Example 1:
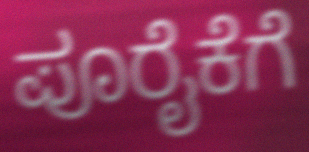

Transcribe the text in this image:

ಪೂರೈಕೆಗೆ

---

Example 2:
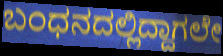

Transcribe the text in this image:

ಬಂಧನದಲ್ಲಿದ್ದಾಗಲೇ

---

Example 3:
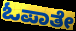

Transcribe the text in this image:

ಓಪಾತೇ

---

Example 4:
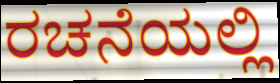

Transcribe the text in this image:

ರಚನೆಯಲ್ಲಿ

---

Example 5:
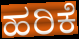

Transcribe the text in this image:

ಹರಿಕೆ